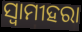
ସ୍ଵାମୀହରା